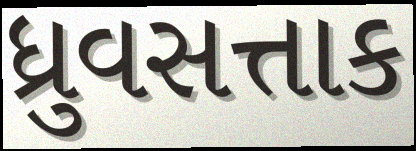
ધ્રુવસત્તાક